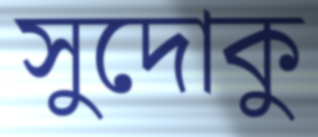
সুদোকু